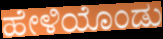
ಹೇಳಿಯೊಂಡು